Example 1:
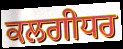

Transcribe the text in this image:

ਕਲਗੀਧਰ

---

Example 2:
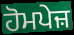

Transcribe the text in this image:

ਹੋਮਪੇਜ਼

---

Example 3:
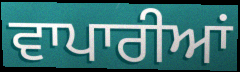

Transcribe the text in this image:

ਵਾਪਾਰੀਆਂ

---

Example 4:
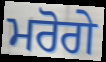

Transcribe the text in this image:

ਮਰੋਗੇ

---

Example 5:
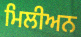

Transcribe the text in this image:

ਮਿਲੀਅਨ